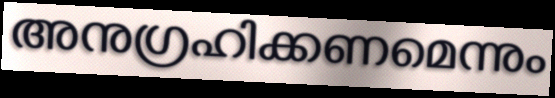
അനുഗ്രഹിക്കണമെന്നും